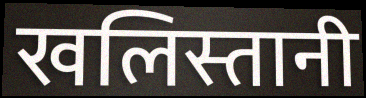
खलिस्तानी